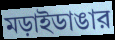
মড়াইডাঙার